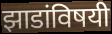
झाडांविषयी